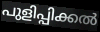
പുളിപ്പിക്കൽ